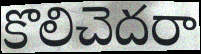
కొలిచెదరా